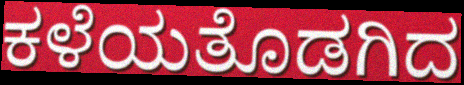
ಕಳೆಯತೊಡಗಿದ